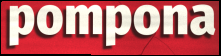
pompona